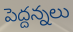
పెద్దన్నలు